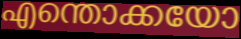
എന്തൊക്കയോ